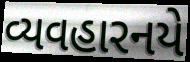
વ્યવહારનયે